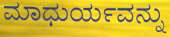
ಮಾಧುರ್ಯವನ್ನು